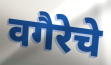
वगैरेचे